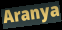
Aranya